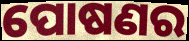
ପୋଷଣର